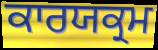
ਕਾਰਯਕ੍ਰਮ